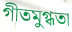
গীতমুগ্ধতা